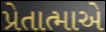
પ્રેતાત્માએ